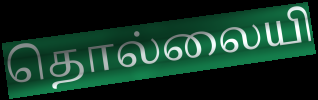
தொல்லையி